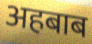
अहबाब